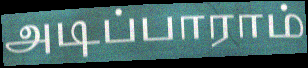
அடிப்பாராம்